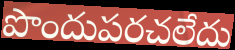
పొందుపరచలేదు